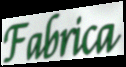
Fabrica